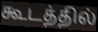
கூடத்தில்